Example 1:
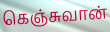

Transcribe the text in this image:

கெஞ்சுவான்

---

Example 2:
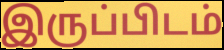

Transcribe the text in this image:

இருப்பிடம்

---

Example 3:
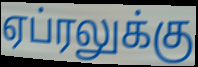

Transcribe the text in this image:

ஏப்ரலுக்கு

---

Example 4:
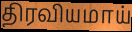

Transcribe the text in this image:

திரவியமாய்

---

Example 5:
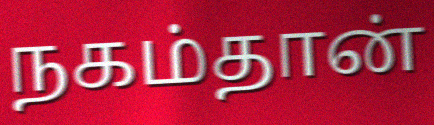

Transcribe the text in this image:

நகம்தான்